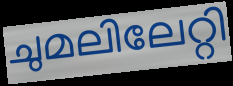
ചുമലിലേറ്റി